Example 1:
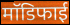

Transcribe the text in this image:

मॉडिफाई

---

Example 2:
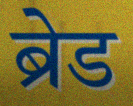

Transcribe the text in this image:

ब्रेड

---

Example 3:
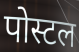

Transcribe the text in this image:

पोस्टल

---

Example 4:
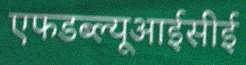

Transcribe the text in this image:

एफडब्ल्यूआईसीई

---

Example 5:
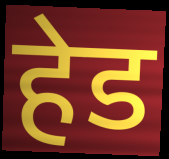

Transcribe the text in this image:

हेड